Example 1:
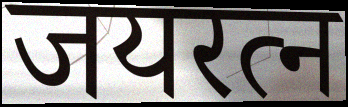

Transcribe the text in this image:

जयरत्न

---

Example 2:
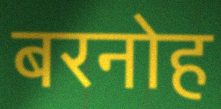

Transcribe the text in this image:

बरनोह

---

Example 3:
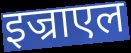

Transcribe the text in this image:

इज्राएल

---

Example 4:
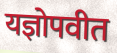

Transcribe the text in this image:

यज्ञोपवीत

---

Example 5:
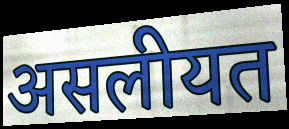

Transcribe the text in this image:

असलीयत